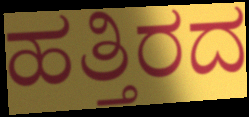
ಹತ್ತಿರದ